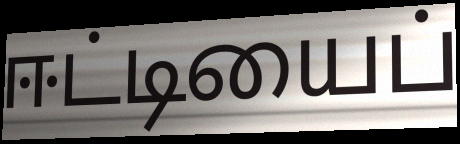
ஈட்டியைப்